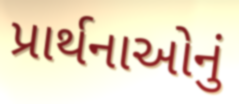
પ્રાર્થનાઓનું